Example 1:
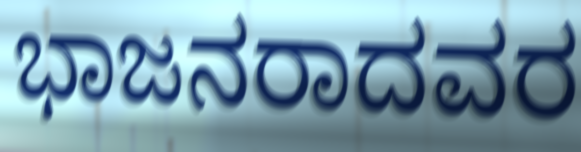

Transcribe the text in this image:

ಭಾಜನರಾದವರ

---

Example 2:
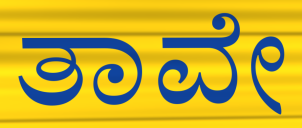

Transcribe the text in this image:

ತಾವೇ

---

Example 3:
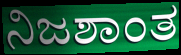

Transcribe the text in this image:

ನಿಜಶಾಂತ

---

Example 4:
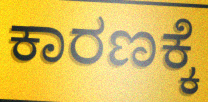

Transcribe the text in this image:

ಕಾರಣಕ್ಕೆ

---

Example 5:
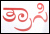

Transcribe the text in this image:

ತ್ರಾಸಿ